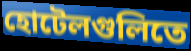
হোটেলগুলিতে